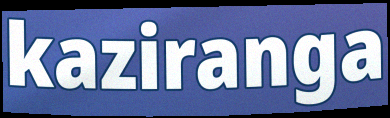
kaziranga